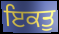
ਇਕਤੁ